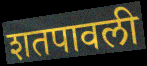
शतपावली